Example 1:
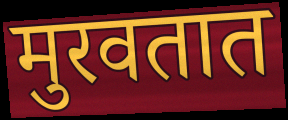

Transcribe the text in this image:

मुरवतात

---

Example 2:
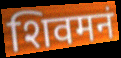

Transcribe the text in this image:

शिवमनं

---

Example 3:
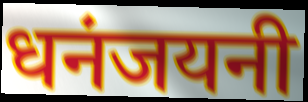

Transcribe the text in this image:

धनंजयनी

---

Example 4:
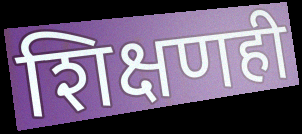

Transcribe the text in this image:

शिक्षणही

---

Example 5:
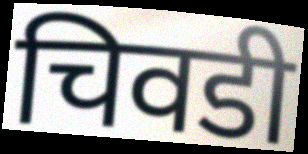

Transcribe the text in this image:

चिवडी